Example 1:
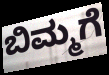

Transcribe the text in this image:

ಬಿಮ್ಮಗೆ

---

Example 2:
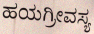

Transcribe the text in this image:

ಹಯಗ್ರೀವಸ್ಯ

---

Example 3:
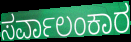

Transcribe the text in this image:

ಸರ್ವಾಲಂಕಾರ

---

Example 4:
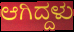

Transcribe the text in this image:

ಆಗಿದ್ದಳು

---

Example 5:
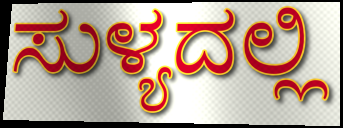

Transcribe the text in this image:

ಸುಳ್ಯದಲ್ಲಿ